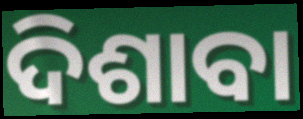
ଦିଶାବା